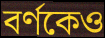
বর্ণকেও